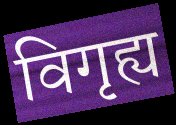
विगृह्य